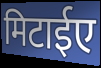
मिटाईए